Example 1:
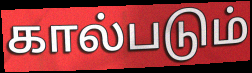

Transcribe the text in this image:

கால்படும்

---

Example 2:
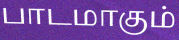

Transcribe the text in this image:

பாடமாகும்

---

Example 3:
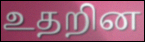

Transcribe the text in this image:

உதறின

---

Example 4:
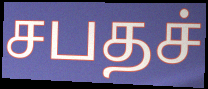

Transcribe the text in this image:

சபதச்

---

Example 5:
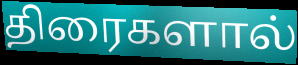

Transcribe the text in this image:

திரைகளால்